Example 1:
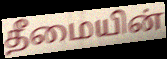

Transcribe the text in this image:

தீமையின்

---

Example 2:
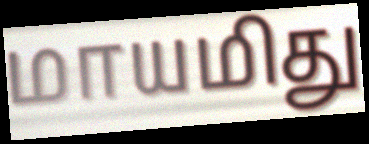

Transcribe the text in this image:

மாயமிது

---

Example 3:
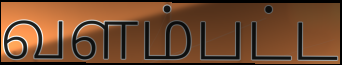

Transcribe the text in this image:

வளம்பட்ட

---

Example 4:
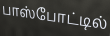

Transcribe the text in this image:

பாஸ்போட்டில்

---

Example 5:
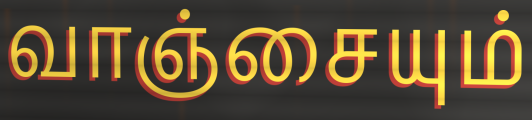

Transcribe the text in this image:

வாஞ்சையும்